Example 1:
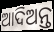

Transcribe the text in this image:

ଆଦିଅନ୍ତ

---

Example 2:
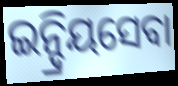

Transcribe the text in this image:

ଇନ୍ଦ୍ରିୟସେବା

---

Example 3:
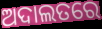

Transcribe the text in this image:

ଅଦାଲତରେ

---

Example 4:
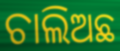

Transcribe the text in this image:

ଚାଲିଅଛ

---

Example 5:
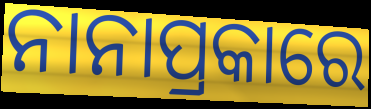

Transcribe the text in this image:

ନାନାପ୍ରକାରେ